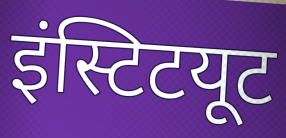
इंस्टिटयूट